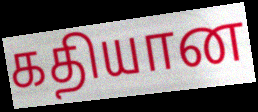
கதியான